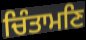
ਚਿੰਤਾਮਣਿ